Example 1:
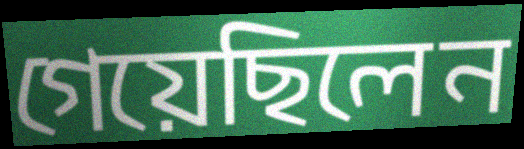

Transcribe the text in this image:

গেয়েছিলেন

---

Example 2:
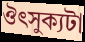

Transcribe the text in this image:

ঔৎসুক্যটা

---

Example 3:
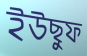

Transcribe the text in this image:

ইউছুফ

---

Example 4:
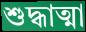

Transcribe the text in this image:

শুদ্ধাত্মা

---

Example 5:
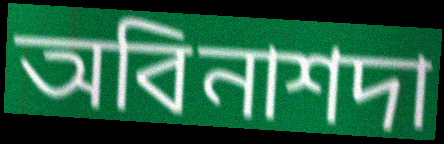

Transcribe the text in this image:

অবিনাশদা